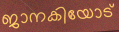
ജാനകിയോട്